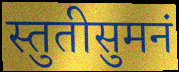
स्तुतीसुमनं